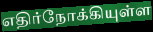
எதிர்நோக்கியுள்ள